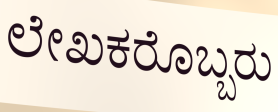
ಲೇಖಕರೊಬ್ಬರು